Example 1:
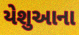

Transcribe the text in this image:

યેશુઆના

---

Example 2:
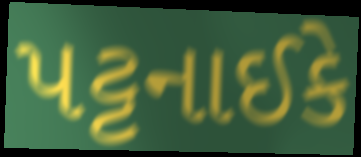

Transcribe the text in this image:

પટ્ટનાઈકે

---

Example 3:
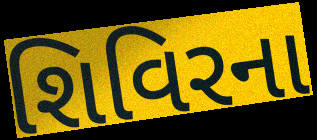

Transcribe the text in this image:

શિવિરના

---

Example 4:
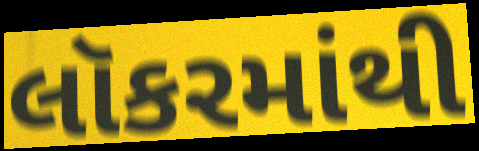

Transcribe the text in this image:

લૉકરમાંથી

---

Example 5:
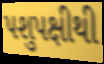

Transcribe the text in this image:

પશુપક્ષીથી